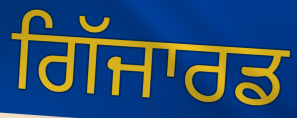
ਗਿੱਜਾਰਡ